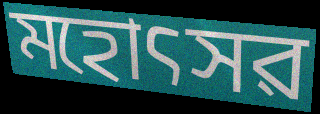
মহোৎসৱ